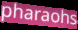
pharaohs